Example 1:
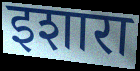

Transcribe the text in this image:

इशारा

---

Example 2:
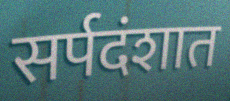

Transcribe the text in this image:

सर्पदंशात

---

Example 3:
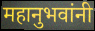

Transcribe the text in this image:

महानुभवांनी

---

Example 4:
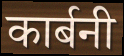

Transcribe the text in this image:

कार्बनी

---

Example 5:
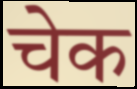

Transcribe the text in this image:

चेक